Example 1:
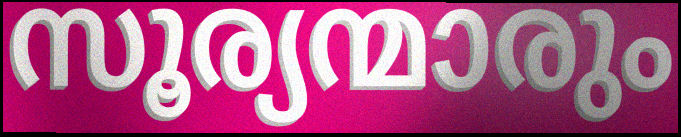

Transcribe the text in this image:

സൂര്യന്മാരും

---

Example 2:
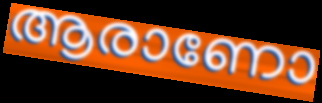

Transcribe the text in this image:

ആരാണോ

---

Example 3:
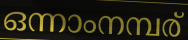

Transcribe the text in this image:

ഒന്നാംനമ്പര്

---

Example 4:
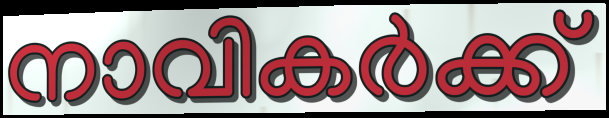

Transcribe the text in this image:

നാവികർക്ക്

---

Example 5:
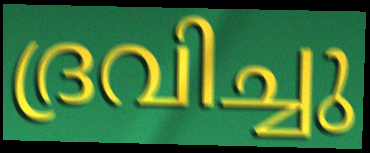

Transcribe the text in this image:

ദ്രവിച്ചു